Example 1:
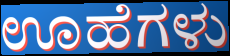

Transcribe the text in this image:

ಊಹೆಗಳು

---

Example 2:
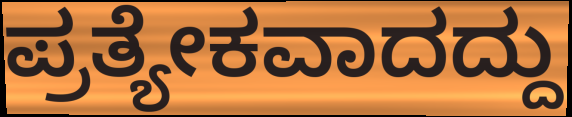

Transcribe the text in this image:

ಪ್ರತ್ಯೇಕವಾದದ್ದು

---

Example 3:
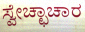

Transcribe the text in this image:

ಸ್ವೇಚ್ಛಾಚಾರ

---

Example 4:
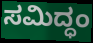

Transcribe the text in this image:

ಸಮಿದ್ಧಂ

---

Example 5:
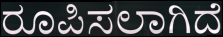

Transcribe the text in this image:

ರೂಪಿಸಲಾಗಿದೆ